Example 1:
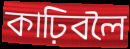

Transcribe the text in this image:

কাঢ়িবলৈ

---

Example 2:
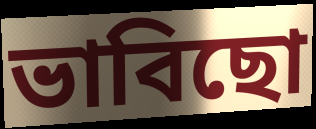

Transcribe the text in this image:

ভাবিছো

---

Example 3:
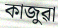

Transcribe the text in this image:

কাজুৱা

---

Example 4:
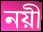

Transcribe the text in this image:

নয়ী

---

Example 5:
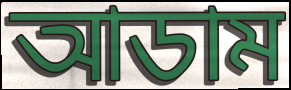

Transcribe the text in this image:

আডাম